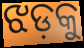
ଝଡ଼କୁ